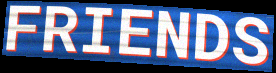
FRIENDS